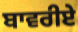
ਬਾਵਰੀਏ